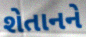
શેતાનને